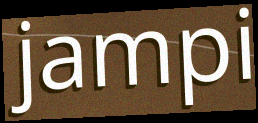
jampi